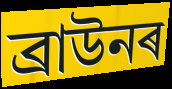
ব্ৰাউনৰ